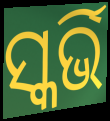
ସ୍କର୍ଭି